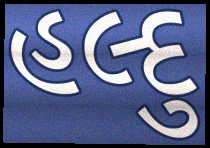
હલ્દુ